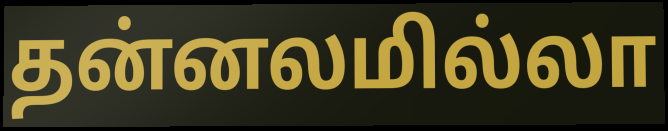
தன்னலமில்லா